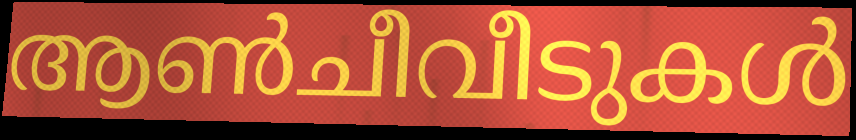
ആൺചീവീടുകൾ